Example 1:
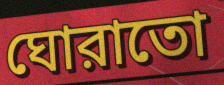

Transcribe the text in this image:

ঘোরাতো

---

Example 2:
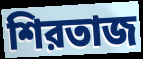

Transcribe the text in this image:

শিরতাজ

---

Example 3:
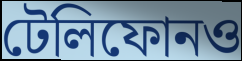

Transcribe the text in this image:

টেলিফোনও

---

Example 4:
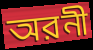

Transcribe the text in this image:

অরনী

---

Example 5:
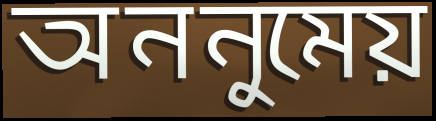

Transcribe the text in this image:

অননুমেয়